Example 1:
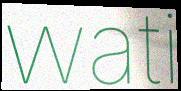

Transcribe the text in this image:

wati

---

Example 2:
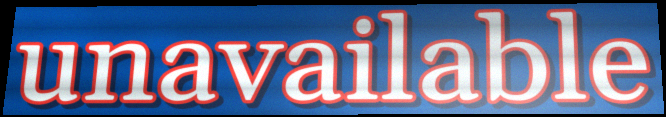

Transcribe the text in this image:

unavailable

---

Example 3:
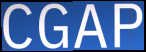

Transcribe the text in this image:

CGAP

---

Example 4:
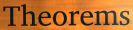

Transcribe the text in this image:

Theorems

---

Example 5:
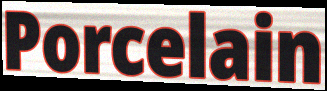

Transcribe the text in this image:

Porcelain